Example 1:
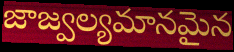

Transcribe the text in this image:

జాజ్వల్యమానమైన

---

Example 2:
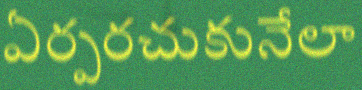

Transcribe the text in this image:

ఏర్పరచుకునేలా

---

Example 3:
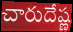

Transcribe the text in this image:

చారుదేష్ణ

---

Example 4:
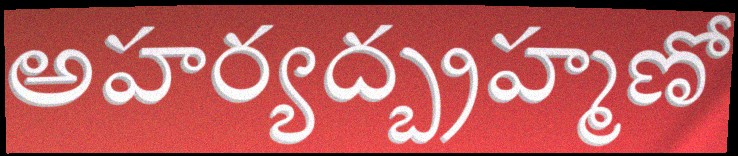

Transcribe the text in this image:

అహర్యద్బ్రహ్మణో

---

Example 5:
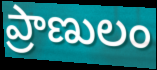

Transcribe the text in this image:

ప్రాణులం